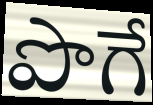
పొగే